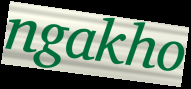
ngakho